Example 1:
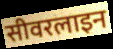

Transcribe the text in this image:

सीवरलाइन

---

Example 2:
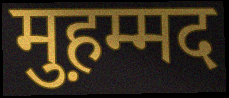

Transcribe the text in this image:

मुह़म्मद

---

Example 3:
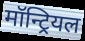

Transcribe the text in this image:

मॉन्ट्रियल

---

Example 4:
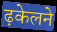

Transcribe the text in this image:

ढ़केलने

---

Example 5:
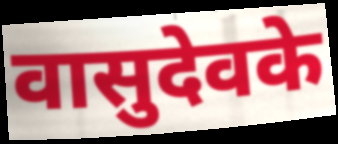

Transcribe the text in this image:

वासुदेवके